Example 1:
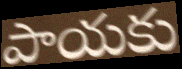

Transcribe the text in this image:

పాయకు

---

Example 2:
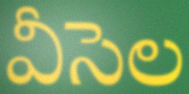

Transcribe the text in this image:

వీసెల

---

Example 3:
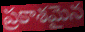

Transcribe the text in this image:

ప్రకాశమైన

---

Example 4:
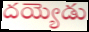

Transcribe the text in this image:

దయ్యెడు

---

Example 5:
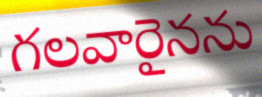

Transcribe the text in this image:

గలవారైనను